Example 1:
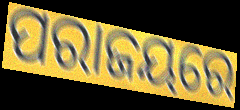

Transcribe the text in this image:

ପରାଜୟରେ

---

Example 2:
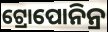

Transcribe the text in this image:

ଟ୍ରୋପୋନିନ୍ର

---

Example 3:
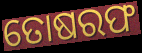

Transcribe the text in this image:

ତୋଷରଫ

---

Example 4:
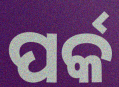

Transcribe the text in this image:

ପର୍କ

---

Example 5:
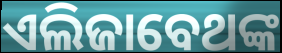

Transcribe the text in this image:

ଏଲିଜାବେଥଙ୍କ